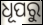
ଧୂପରୁ